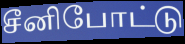
சீனிபோட்டு